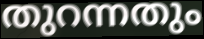
തുറന്നതും